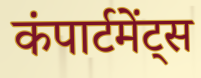
कंपार्टमेंट्स